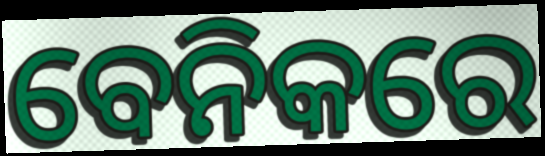
ବେନିକରେ